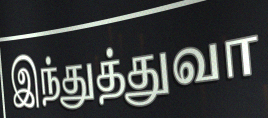
இந்துத்துவா